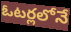
ఓటర్లలోనే